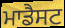
ਮਾਡੈਸਟ